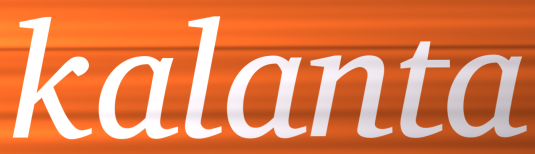
kalanta